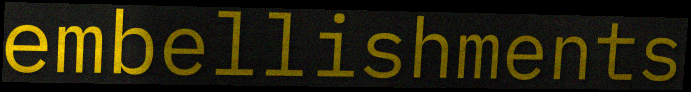
embellishments